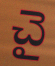
చై